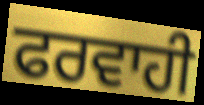
ਫਰਵਾਹੀ